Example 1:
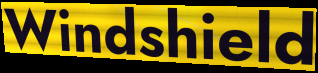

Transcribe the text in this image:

Windshield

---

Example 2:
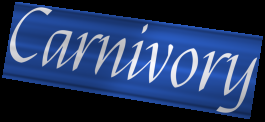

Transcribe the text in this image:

Carnivory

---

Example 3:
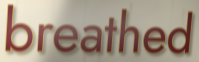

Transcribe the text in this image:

breathed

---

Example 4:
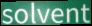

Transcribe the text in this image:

solvent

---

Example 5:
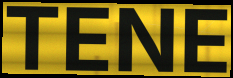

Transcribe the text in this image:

TENE